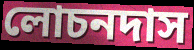
লোচনদাস